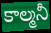
కాల్మనీ